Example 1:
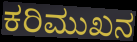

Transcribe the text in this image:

ಕರಿಮುಖನ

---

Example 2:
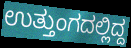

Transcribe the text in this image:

ಉತ್ತುಂಗದಲ್ಲಿದ್ದ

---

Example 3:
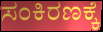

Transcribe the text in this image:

ಸಂಕಿರಣಕ್ಕೆ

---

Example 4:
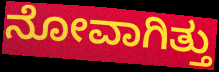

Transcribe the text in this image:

ನೋವಾಗಿತ್ತು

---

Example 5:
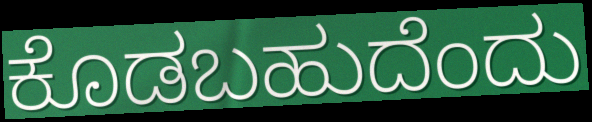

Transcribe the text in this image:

ಕೊಡಬಹುದೆಂದು